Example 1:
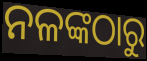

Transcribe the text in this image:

ନଳଙ୍କଠାରୁ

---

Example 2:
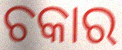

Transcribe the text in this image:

ଚକାର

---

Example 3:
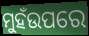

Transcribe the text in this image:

ମୁହଁଉପରେ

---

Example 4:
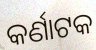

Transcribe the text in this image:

କର୍ଣାଟକ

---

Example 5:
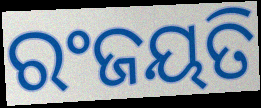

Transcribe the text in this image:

ରଂଜୟତି